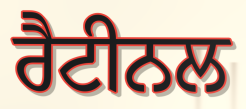
ਰੈਟੀਨਲ